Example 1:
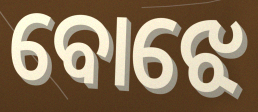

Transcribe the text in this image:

ବୋଝେ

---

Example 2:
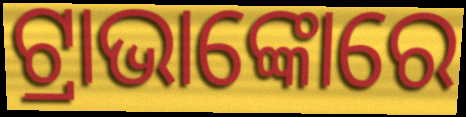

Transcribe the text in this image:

ଟ୍ରାଭାଙ୍କୋରେ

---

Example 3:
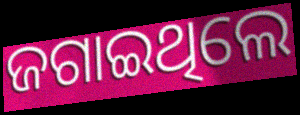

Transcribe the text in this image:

ଜଗାଇଥିଲେ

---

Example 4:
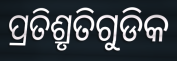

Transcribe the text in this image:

ପ୍ରତିଶ୍ରୃତିଗୁଡିକ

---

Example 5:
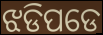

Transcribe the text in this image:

ଝଡିପଡେ